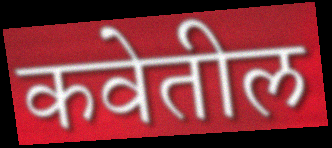
कवेतील